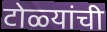
टोळ्यांची